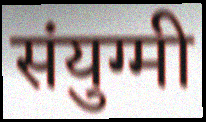
संयुग्मी